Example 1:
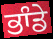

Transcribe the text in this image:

ਭਾੰਡੇ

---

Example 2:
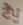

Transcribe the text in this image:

ਟੈਂਪੂ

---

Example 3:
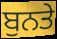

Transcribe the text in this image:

ਬੁਨਤੇ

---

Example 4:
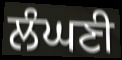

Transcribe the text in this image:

ਲੰਘਣੀ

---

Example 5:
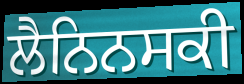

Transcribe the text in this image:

ਲੈਨਿਨਸਕੀ